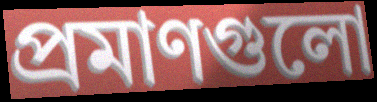
প্রমাণগুলো